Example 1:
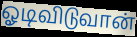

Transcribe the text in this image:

ஓடிவிடுவான்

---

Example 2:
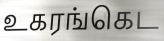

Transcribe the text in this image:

உகரங்கெட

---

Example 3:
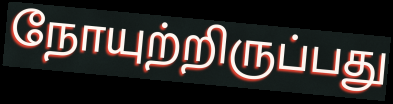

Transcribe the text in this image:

நோயுற்றிருப்பது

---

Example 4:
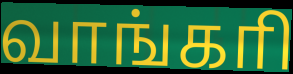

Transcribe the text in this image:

வாங்கரி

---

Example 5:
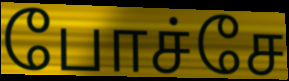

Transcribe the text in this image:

போச்சே